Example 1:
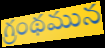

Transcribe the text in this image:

గ్రంథమున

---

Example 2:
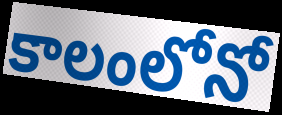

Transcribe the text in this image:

కాలంలోనో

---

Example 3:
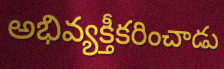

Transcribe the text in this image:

అభివ్యక్తీకరించాడు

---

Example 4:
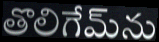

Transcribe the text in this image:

తొలిగేమ్‌ను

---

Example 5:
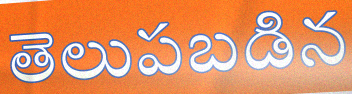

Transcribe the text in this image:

తెలుపబడిన